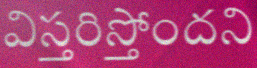
విస్తరిస్తోందని